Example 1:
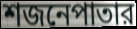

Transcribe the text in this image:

শজনেপাতার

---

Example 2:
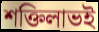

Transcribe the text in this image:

শক্তিলাভই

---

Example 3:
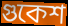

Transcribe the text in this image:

গুকেশ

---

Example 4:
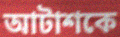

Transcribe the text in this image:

আটাশকে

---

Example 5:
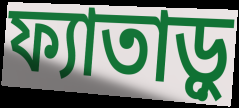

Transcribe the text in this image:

ফ্যাতাড়ু